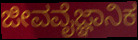
ಜೀವವೈಜ್ಞಾನಿಕ